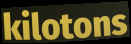
kilotons